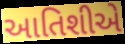
આતિશીએ